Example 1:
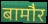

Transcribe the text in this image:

बामौर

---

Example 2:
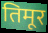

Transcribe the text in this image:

तिमूर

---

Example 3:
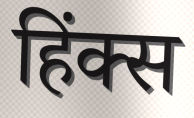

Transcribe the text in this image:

हिंक्स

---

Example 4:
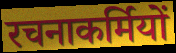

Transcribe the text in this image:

रचनाकर्मियों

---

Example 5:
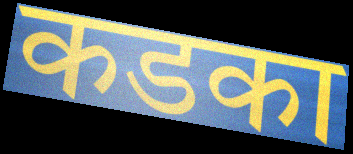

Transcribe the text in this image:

कडका